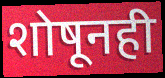
शोषूनही